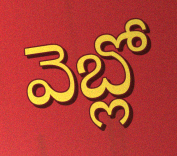
వెబ్లో